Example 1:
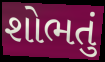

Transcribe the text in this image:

શોભતું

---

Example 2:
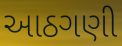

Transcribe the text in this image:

આઠગણી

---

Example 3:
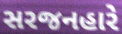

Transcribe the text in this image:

સરજનહારે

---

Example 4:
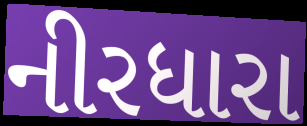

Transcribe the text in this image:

નીરધારા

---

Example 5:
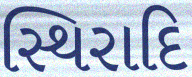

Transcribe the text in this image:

સ્થિરાદિ